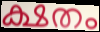
ക്ഷതം